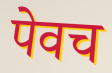
पेवच